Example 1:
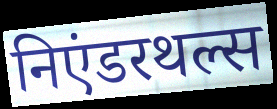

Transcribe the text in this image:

निएंडरथल्स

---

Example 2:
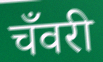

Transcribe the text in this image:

चँवरी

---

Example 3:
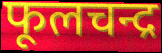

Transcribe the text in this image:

फूलचन्द्र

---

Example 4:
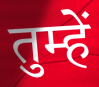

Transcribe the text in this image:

तुम्हें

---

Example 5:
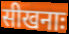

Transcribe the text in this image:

सीखनाः